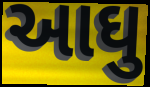
આઘુ